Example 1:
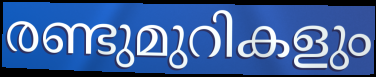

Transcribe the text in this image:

രണ്ടുമുറികളും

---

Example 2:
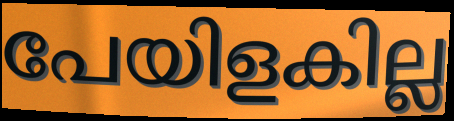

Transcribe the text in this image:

പേയിളകില്ല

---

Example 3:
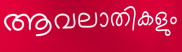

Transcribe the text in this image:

ആവലാതികളും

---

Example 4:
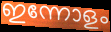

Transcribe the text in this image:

ഇന്നോളം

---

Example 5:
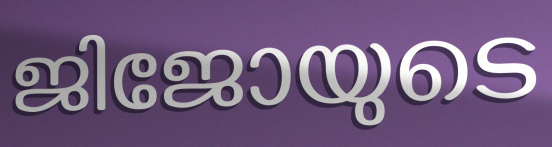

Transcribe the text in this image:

ജിജോയുടെ